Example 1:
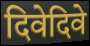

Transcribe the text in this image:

दिवेदिवे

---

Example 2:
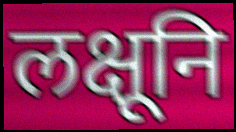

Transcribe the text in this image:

लक्षूनि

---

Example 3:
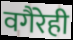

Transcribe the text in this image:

वगैरेही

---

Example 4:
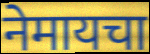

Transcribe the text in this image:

नेमायचा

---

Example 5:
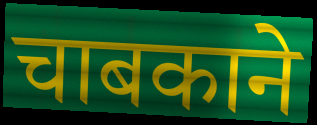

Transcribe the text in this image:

चाबकाने